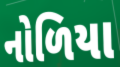
નોળિયા